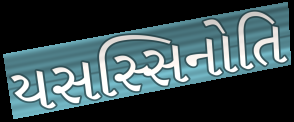
યસસ્સિનોતિ